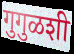
गुगुळशी